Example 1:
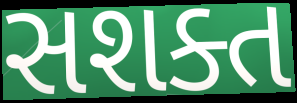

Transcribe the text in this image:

સશક્ત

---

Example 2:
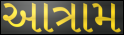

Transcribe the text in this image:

આત્રામ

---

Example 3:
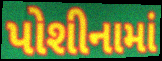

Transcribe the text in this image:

પોશીનામાં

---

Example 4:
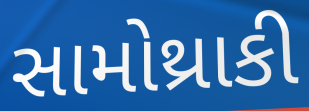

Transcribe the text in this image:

સામોથ્રાકી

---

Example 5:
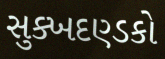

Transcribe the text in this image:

સુક્ખદણ્ડકો